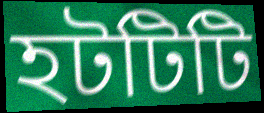
হটটিটি